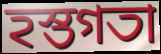
হস্তগতা